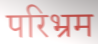
परिभ्रम